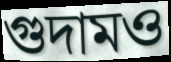
গুদামও